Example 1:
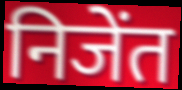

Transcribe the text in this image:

निजेंत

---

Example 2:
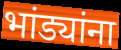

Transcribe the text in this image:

भांड्यांना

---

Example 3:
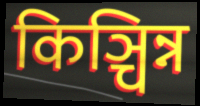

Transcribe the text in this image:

किञ्चिन्न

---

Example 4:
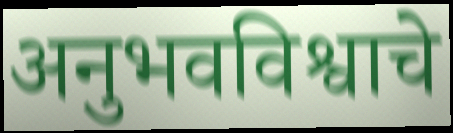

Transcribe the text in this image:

अनुभवविश्वाचे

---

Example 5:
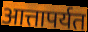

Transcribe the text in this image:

आत्तापर्यत